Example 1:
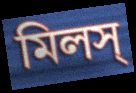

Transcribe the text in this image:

মিলস্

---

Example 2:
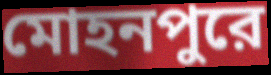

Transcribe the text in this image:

মোহনপুরে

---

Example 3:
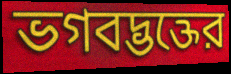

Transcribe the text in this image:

ভগবদ্ভক্তের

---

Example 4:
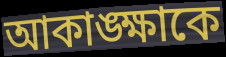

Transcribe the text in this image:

আকাঙ্ক্ষাকে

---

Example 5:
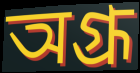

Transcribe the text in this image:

অগ্রূ